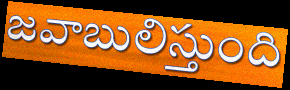
జవాబులిస్తుంది